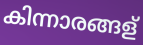
കിന്നാരങ്ങള്